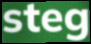
steg